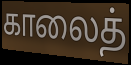
காலைத்